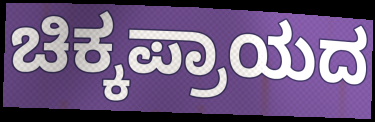
ಚಿಕ್ಕಪ್ರಾಯದ